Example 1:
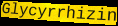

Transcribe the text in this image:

Glycyrrhizin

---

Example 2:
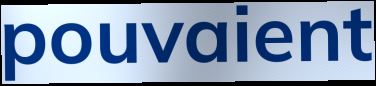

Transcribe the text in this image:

pouvaient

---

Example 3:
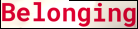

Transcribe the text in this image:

Belonging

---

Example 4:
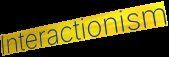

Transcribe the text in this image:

Interactionism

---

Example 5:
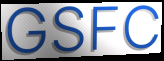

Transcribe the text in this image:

GSFC